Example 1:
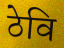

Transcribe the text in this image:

ठेवि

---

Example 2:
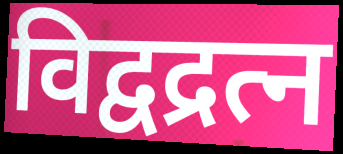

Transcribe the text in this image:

विद्वद्रत्न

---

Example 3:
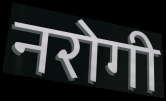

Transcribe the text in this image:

नरोगी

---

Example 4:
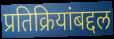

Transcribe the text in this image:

प्रतिक्रियांबद्दल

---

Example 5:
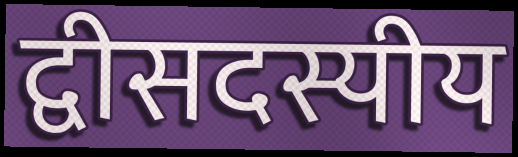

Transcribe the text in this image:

द्वीसदस्यीय